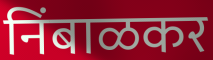
निंबाळकर